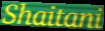
Shaitani